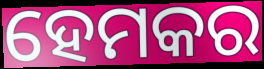
ହେମକର